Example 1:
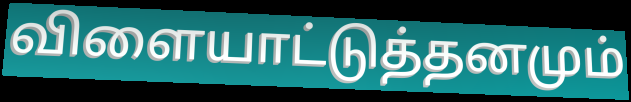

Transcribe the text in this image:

விளையாட்டுத்தனமும்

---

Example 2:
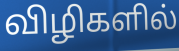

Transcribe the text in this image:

விழிகளில்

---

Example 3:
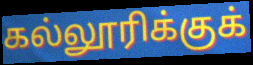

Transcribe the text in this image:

கல்லூரிக்குக்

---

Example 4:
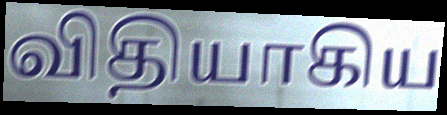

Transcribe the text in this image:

விதியாகிய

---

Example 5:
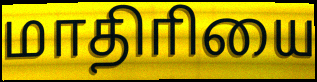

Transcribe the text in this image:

மாதிரியை